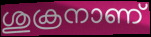
ശുക്രനാണ്